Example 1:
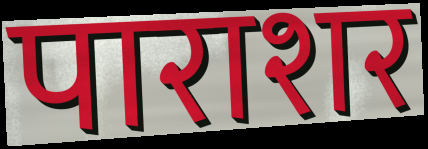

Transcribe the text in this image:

पाराशर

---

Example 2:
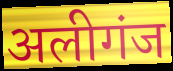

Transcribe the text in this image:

अलीगंज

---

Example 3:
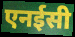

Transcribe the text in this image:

एनईसी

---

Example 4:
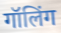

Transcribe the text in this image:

गॉलिंग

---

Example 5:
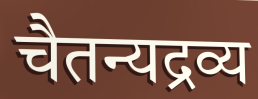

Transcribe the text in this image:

चैतन्यद्रव्य